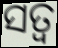
ସତ୍ୱ